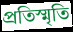
প্রতিস্মৃতি